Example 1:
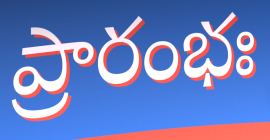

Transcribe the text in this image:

ప్రారంభః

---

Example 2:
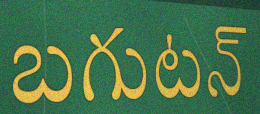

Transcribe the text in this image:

బగుటన్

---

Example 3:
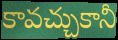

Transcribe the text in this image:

కావచ్చుకానీ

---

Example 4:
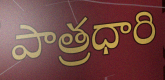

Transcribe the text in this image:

పాత్రధారి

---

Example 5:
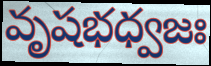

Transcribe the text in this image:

వృషభధ్వజః